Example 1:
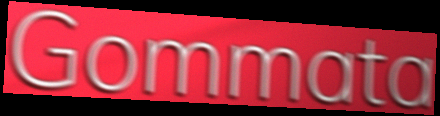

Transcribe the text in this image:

Gommata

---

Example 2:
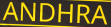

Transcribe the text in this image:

ANDHRA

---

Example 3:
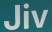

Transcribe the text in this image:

Jiv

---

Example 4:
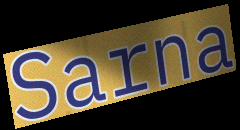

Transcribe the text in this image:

Sarna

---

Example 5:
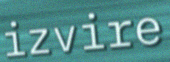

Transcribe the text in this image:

izvire